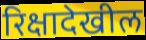
रिक्षादेखील